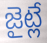
జైట్లే